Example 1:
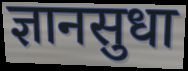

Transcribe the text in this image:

ज्ञानसुधा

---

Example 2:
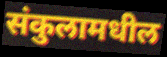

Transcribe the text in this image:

संकुलामधील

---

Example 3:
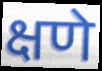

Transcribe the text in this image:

क्षणे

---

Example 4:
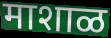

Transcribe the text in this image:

माशाळ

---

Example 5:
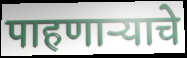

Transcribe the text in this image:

पाहणाऱ्याचे